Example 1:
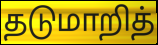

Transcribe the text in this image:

தடுமாறித்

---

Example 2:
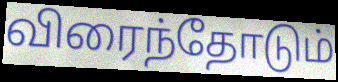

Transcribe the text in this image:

விரைந்தோடும்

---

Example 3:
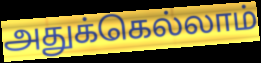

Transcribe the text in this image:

அதுக்கெல்லாம்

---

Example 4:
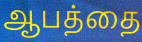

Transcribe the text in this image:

ஆபத்தை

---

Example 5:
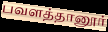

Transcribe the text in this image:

பவளத்தானூர்